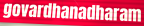
govardhanadharam